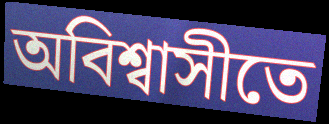
অবিশ্বাসীতে